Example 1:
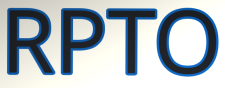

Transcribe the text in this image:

RPTO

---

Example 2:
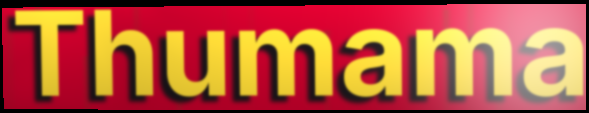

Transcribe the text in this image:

Thumama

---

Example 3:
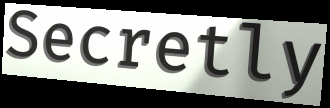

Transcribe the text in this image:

Secretly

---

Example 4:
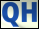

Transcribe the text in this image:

QH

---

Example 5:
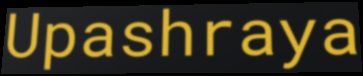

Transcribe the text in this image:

Upashraya